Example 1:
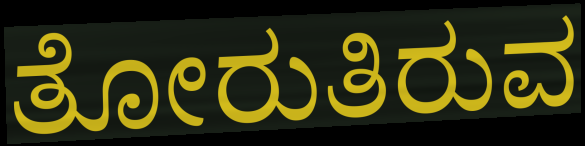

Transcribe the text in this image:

ತೋರುತಿರುವ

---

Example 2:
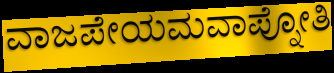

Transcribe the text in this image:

ವಾಜಪೇಯಮವಾಪ್ನೋತಿ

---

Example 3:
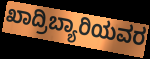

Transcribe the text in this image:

ಖಾದ್ರಿಬ್ಯಾರಿಯವರ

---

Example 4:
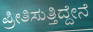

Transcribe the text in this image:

ಪ್ರೀತಿಸುತ್ತಿದ್ದೇನೆ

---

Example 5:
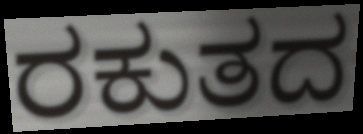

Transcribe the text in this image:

ರಕುತದ